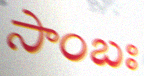
సాంబః